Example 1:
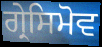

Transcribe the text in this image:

ਗ੍ਰੇਸਿਮੋਵ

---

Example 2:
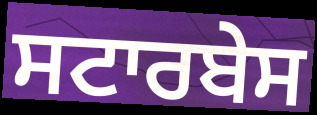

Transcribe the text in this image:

ਸਟਾਰਬੇਸ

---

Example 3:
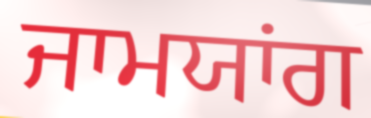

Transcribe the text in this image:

ਜਾਮਯਾਂਗ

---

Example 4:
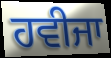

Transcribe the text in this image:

ਹਵੀਜਾ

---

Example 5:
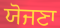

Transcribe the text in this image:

ਯੋਜਣਾ